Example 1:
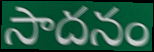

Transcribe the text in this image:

సాదనం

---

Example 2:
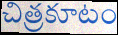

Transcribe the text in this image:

చిత్రకూటం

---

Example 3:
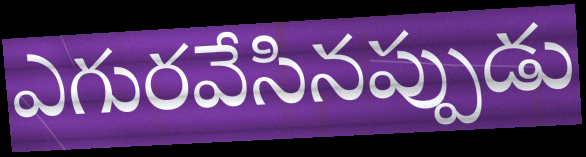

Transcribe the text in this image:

ఎగురవేసినప్పుడు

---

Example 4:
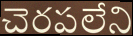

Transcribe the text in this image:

చెరపలేని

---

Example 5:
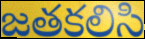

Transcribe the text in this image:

జతకలిసి